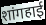
शांगहाई